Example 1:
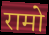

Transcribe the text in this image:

रामो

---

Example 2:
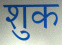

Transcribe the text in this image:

शुक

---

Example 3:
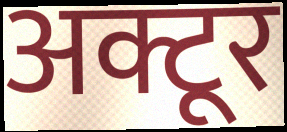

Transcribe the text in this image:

अक्टूर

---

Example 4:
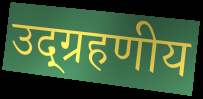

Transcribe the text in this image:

उद्ग्रहणीय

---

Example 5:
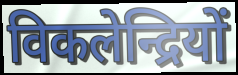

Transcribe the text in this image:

विकलेन्द्रियों